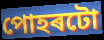
পোহৰটো